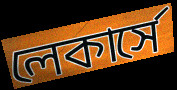
লেকার্সে